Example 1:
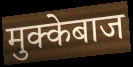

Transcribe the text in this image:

मुक्केबाज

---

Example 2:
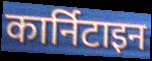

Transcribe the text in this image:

कार्निटाइन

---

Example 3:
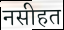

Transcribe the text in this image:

नसीहत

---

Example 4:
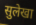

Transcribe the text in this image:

सुलेखा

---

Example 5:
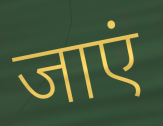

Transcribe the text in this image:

जाएं